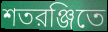
শতরঞ্জিতে